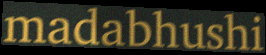
madabhushi